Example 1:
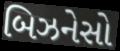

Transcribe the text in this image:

બિઝનેસો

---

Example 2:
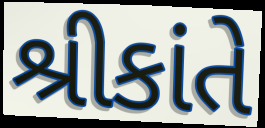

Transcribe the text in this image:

શ્રીકાંતે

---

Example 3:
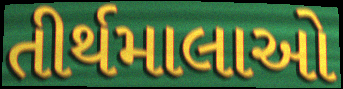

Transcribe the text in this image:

તીર્થમાલાઓ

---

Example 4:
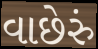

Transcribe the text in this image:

વાછેરું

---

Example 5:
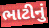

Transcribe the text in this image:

ભાટીનું